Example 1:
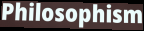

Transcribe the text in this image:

Philosophism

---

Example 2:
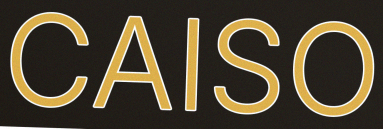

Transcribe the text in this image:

CAISO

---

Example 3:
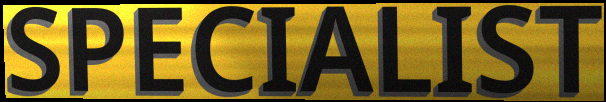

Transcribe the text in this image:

SPECIALIST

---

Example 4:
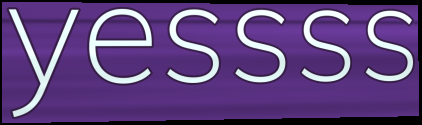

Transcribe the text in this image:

yessss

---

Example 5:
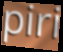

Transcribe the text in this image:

piri